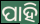
ପାହି